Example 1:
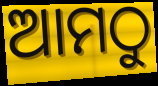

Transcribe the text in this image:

ଆମଠୁ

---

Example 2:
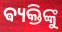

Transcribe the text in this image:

ଵ୍ୟକ୍ତିଙ୍କୁ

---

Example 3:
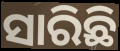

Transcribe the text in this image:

ସାରିଛି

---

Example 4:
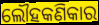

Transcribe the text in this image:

ଲୌହକଣିକାର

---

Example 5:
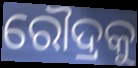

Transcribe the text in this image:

ରୌଦ୍ରକୁ